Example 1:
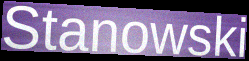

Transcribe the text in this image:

Stanowski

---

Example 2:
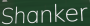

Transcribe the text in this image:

Shanker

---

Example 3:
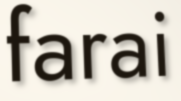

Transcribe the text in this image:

farai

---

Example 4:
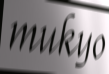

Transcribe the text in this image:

mukyo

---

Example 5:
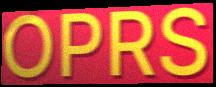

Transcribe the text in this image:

OPRS